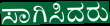
ಸಾಗಿಸಿದರು